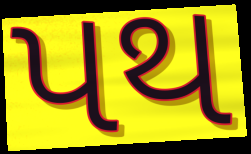
પથ